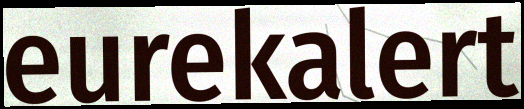
eurekalert